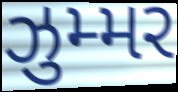
ઝુમ્મર